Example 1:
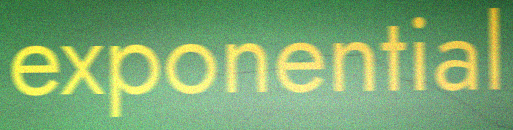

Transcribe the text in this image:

exponential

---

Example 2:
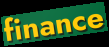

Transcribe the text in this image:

finance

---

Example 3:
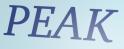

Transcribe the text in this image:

PEAK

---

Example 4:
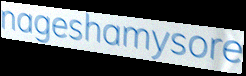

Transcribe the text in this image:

nageshamysore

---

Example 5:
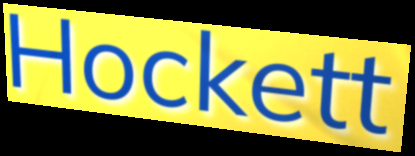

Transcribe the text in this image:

Hockett